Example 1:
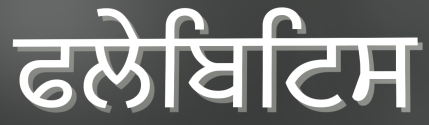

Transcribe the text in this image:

ਫਲੇਬਿਟਿਸ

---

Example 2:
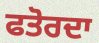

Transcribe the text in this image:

ਫਤੋਰਦਾ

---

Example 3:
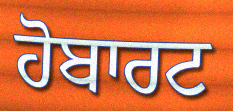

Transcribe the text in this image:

ਹੋਬਾਰਟ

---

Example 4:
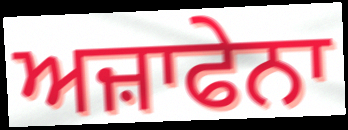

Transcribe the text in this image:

ਅਜ਼ਾਫੇਨਾ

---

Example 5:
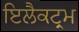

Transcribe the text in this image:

ਇਲੈਕਟ੍ਰਮ